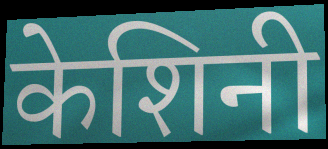
केशिनी